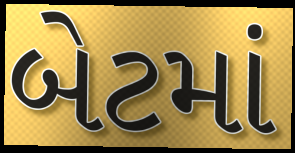
બેટમાં